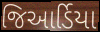
જિઆર્ડિયા